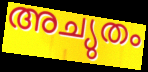
അച്യുതം